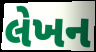
લેખન